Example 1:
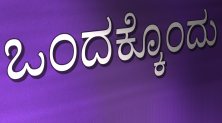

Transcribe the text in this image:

ಒಂದಕ್ಕೊಂದು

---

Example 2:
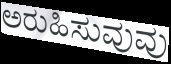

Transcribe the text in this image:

ಅರುಹಿಸುವುವು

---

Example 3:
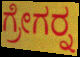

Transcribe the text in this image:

ಗ್ರೇಗರ್‍ನ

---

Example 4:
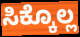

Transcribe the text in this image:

ಸಿಕ್ಕೊಲ್ಲ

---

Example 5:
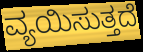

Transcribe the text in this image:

ವ್ಯಯಿಸುತ್ತದೆ